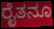
ರೈತನೂ